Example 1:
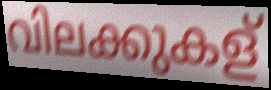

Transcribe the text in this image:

വിലക്കുകള്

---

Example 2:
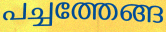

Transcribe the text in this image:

പച്ചത്തേങ്ങ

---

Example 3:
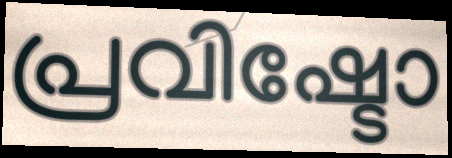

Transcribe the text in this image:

പ്രവിഷ്ടോ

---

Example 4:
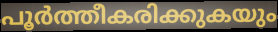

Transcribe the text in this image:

പൂർത്തീകരിക്കുകയും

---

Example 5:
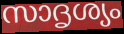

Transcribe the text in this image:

സാദൃശ്യം